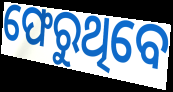
ଫେରୁଥିବେ